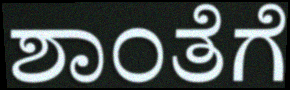
ಶಾಂತೆಗೆ